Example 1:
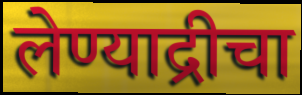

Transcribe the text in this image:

लेण्याद्रीचा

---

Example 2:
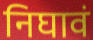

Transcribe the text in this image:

निघावं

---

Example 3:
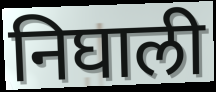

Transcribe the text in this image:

निघाली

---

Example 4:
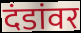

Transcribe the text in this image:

दंडांवर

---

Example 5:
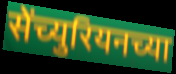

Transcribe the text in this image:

सेंच्युरियनच्या